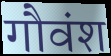
गौवंश